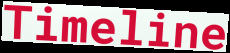
Timeline